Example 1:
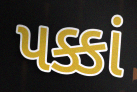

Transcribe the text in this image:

પક્કાં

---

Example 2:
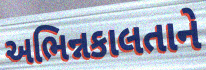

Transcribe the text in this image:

અભિન્નકાલતાને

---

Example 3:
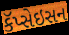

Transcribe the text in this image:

કૅપ્સેઇસન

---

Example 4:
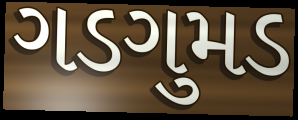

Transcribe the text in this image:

ગડગુમડ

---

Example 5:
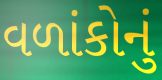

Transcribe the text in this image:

વળાંકોનું